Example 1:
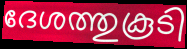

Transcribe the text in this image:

ദേശത്തുകൂടി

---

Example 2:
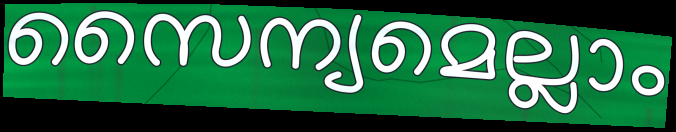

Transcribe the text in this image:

സൈന്യമെല്ലാം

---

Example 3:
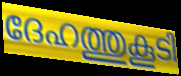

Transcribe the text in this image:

ദേഹത്തുകൂടി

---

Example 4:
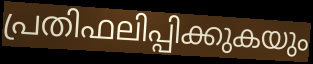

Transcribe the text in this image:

പ്രതിഫലിപ്പിക്കുകയും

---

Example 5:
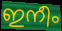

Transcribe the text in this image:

ഇനീം